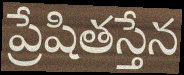
ప్రేషితస్తేన